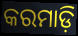
କରମାଡ଼ି